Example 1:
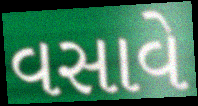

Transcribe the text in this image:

વસાવે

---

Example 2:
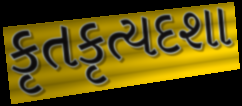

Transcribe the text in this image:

કૃતકૃત્યદશા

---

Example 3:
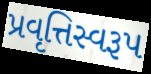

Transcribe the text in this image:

પ્રવૃત્તિસ્વરૂપ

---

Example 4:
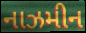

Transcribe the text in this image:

નાઝમીન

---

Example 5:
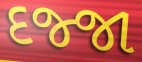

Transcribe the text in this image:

દજ્જા